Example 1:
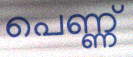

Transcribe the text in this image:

പെണ്ണ്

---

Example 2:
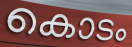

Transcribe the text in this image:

കൊടം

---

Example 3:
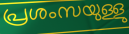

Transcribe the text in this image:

പ്രശംസയുള്ളു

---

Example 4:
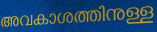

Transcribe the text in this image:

അവകാശത്തിനുള്ള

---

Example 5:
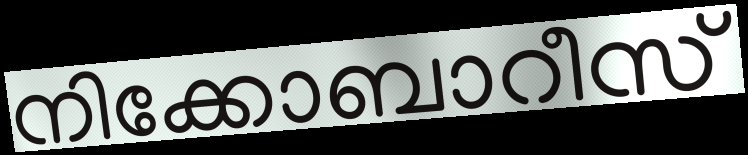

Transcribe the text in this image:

നിക്കോബാറീസ്